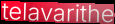
telavarithe